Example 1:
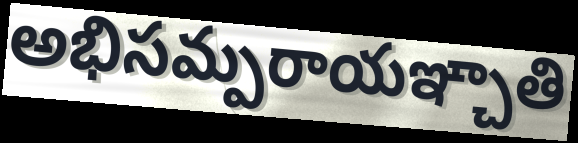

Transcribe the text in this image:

అభిసమ్పరాయఞ్చాతి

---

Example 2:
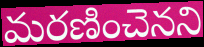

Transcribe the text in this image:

మరణించెనని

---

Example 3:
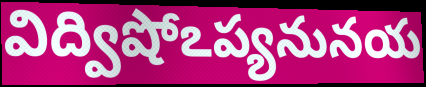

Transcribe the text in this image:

విద్విషోఽప్యనునయ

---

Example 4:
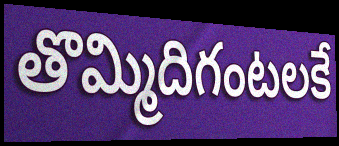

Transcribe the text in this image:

తొమ్మిదిగంటలకే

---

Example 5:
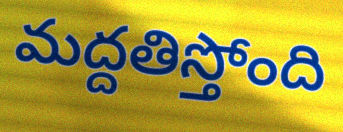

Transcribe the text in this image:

మద్దతిస్తోంది